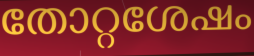
തോറ്റശേഷം